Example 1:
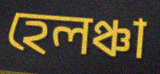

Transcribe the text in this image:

হেলঞ্চা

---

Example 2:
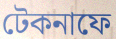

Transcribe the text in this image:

টেকনাফে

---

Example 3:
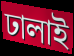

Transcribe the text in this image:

ঢালাই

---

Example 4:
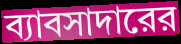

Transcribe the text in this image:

ব্যাবসাদারের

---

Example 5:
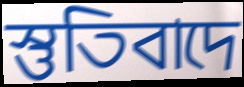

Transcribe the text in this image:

স্তুতিবাদে